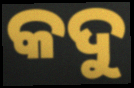
କଦୁ